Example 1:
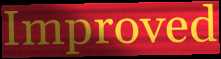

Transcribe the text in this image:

Improved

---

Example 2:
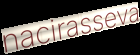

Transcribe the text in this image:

nacirasseva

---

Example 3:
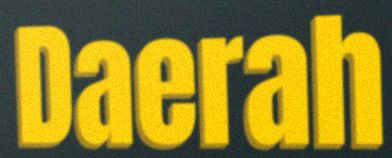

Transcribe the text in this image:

Daerah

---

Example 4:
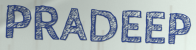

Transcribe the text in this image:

PRADEEP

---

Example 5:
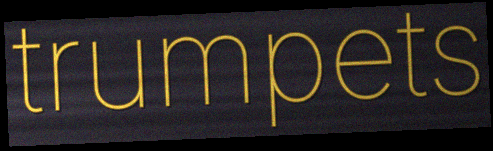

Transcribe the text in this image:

trumpets